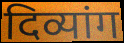
दिव्यांग